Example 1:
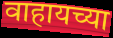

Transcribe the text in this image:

वाहायच्या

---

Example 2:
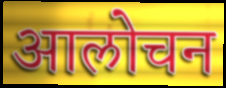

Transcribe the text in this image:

आलोचन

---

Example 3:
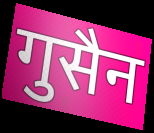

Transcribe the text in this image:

गुसैन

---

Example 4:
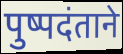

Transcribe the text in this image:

पुष्पदंताने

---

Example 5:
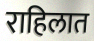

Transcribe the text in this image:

राहिलात